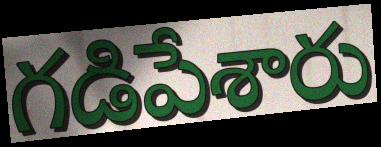
గడిపేశారు